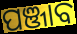
ପଞ୍ଜାବ